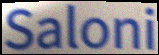
Saloni